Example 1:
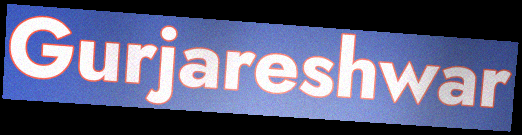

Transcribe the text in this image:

Gurjareshwar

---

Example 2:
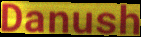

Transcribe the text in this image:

Danush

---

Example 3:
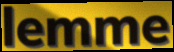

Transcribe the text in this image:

lemme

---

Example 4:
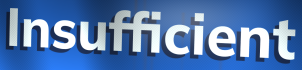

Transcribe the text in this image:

Insufficient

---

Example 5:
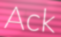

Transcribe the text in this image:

Ack